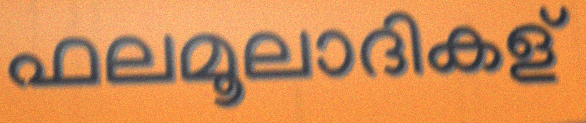
ഫലമൂലാദികള്